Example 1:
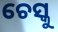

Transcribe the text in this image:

ଚେସ୍କୁ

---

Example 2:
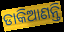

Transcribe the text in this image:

ଡାକିଆଣନ୍ତି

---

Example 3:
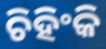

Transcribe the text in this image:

ଚିହିଂକି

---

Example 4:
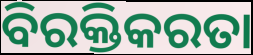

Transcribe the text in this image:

ବିରକ୍ତିକରତା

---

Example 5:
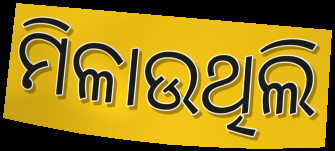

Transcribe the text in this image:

ମିଳାଉଥିଲି